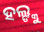
ହଲ୍ଙ୍କୁ